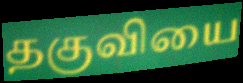
தகுவியை